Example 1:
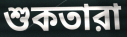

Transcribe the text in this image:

শুকতারা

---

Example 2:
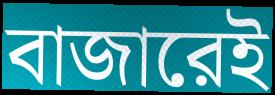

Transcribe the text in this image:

বাজারেই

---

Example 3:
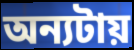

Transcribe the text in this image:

অন্যটায়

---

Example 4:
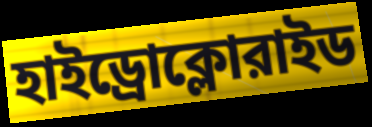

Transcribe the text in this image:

হাইড্রোক্লোরাইড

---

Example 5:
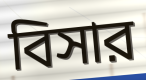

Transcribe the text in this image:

বিসার